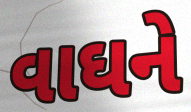
વાઘને